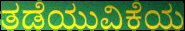
ತಡೆಯುವಿಕೆಯ